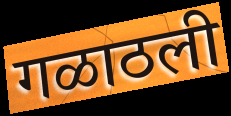
गळाठली